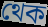
থেক